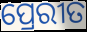
ପ୍ରେରୀତ